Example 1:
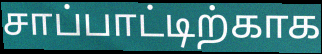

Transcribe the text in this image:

சாப்பாட்டிற்காக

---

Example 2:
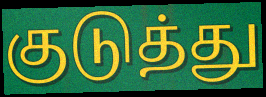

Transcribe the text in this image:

குடுத்து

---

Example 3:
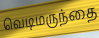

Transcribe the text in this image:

வெடிமருந்தை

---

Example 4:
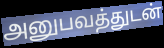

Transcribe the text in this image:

அனுபவத்துடன்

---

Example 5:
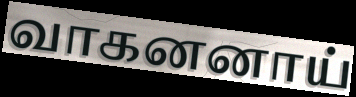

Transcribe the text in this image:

வாகனனாய்